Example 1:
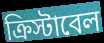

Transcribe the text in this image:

ক্রিস্টাবেল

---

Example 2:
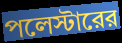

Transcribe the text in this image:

পলেস্টারের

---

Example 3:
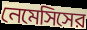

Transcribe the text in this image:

নেমেসিসের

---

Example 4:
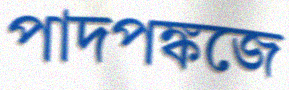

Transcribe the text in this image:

পাদপঙ্কজে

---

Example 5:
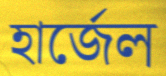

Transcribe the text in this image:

হার্জেল